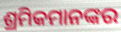
ଶ୍ରମିକମାନଙ୍କର